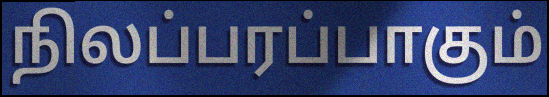
நிலப்பரப்பாகும்